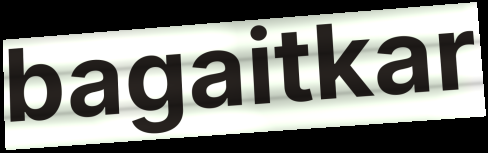
bagaitkar